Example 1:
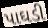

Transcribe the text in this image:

પાઘડી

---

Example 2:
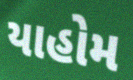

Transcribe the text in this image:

યાહોમ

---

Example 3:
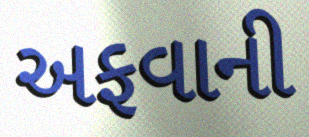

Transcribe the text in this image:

અફવાની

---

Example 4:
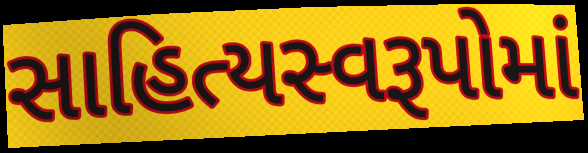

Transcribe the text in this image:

સાહિત્યસ્વરૂપોમાં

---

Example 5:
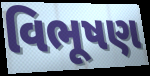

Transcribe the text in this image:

વિભૂષણ